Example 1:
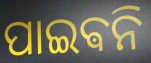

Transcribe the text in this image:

ପାଇଵନି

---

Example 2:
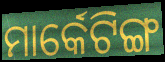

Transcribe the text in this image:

ମାର୍କେଟିଙ୍ଗ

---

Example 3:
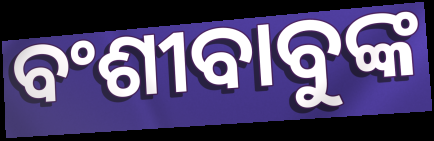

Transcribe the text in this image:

ବଂଶୀବାବୁଙ୍କ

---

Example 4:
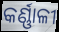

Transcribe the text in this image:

କର୍ଣ୍ଣାଳୀ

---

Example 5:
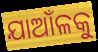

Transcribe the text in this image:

ଯାଆଁଳକୁ